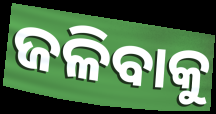
ଜଳିବାକୁ